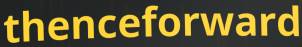
thenceforward